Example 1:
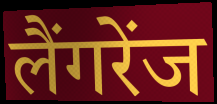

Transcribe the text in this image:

लैंगरेंज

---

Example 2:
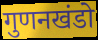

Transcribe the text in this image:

गुणनखंडो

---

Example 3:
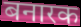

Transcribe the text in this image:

बनारक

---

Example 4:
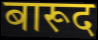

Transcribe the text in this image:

बारूद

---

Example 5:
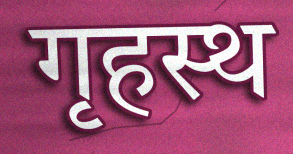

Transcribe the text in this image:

गृहस्‍थ